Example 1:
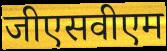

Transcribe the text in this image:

जीएसवीएम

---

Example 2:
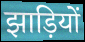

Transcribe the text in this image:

झाड़ियों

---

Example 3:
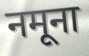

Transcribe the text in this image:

नमूना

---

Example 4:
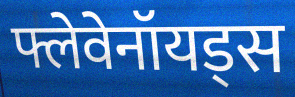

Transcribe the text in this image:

फ्लेवेनॉयड्स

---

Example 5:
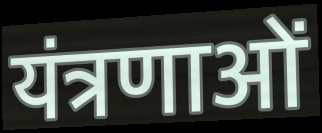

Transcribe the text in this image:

यंत्रणाओं